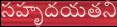
సహృదయతని